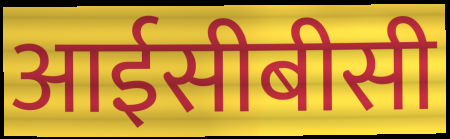
आईसीबीसी